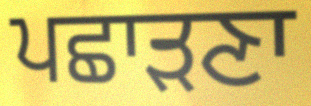
ਪਛਾੜਣਾ